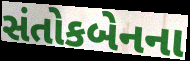
સંતોકબેનના